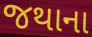
જથાના